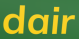
dair